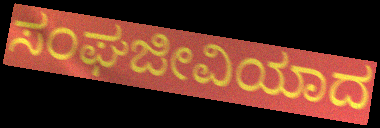
ಸಂಘಜೀವಿಯಾದ